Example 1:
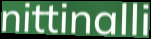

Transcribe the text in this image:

nittinalli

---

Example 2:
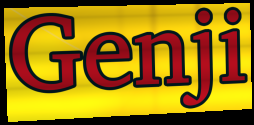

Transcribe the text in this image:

Genji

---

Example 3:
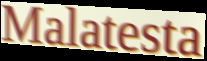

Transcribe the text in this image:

Malatesta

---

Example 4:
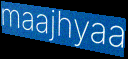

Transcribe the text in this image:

maajhyaa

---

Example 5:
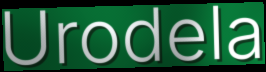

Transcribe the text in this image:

Urodela